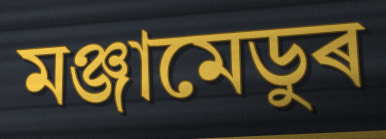
মঞ্জামেডুৰ